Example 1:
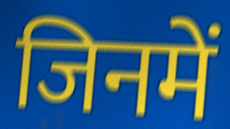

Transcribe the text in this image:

जिनमें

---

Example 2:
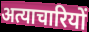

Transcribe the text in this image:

अत्याचारियों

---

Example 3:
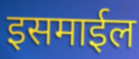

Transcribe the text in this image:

इसमाईल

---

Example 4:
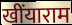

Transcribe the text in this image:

खींयाराम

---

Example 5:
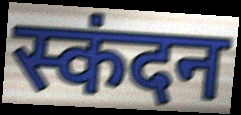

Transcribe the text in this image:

स्कंदन